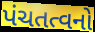
પંચતત્વનો